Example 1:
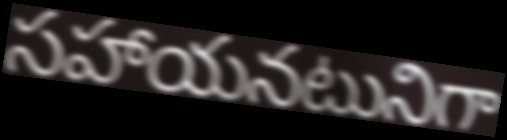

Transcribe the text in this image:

సహాయనటునిగా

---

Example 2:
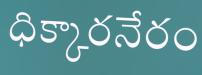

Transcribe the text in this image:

ధిక్కారనేరం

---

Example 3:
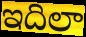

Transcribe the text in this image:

ఇదిలా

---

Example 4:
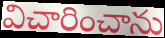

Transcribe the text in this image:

విచారించాను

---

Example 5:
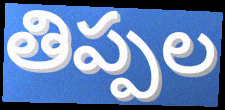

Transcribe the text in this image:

తిప్పల